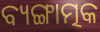
ବ୍ୟଙ୍ଗାତ୍ମକ